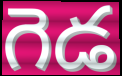
గెడ